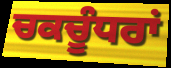
ਚਕਚੂੰਧਰਾਂ